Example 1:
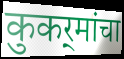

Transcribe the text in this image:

कुकर्मांचा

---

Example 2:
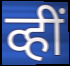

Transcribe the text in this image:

व्हीं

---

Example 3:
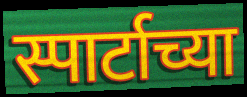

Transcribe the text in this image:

स्पार्टाच्या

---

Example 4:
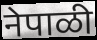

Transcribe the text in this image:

नेपाळी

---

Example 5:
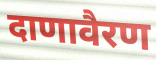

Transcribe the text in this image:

दाणावैरण